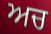
ਅਚ